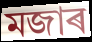
মজাৰ